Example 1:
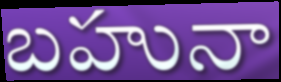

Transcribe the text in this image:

బహునా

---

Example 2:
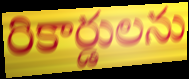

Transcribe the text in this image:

రికార్డులను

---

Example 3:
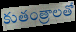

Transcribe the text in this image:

కుతంత్రాలతో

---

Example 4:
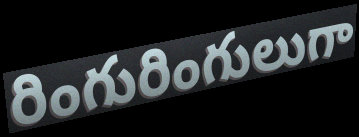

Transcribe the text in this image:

రింగురింగులుగా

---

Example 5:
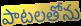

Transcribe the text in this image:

పాటలతోను